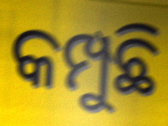
କମ୍ପୁଛି